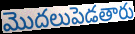
మొదలుపెడతారు